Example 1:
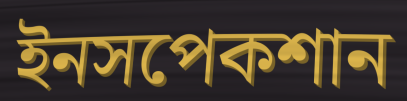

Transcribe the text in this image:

ইনসপেকশান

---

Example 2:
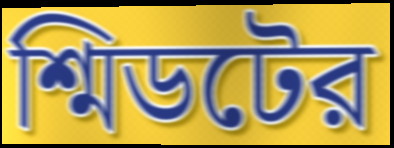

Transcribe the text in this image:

শ্মিডটের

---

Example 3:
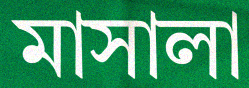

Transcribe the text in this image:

মাসালা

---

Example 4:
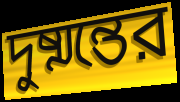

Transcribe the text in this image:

দুষ্মন্তের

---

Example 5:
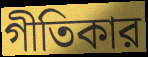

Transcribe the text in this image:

গীতিকার